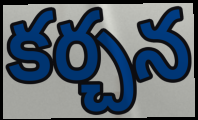
కర్చన